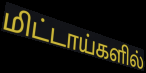
மிட்டாய்களில்